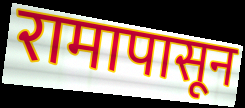
रामापासून